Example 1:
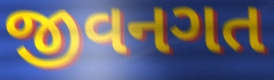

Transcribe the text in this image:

જીવનગત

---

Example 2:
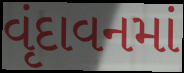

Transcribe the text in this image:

વૃંદાવનમાં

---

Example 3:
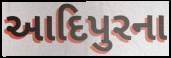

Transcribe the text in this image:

આદિપુરના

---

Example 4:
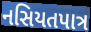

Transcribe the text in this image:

નસિયતપાત્ર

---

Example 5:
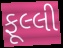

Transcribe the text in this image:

ફૂલ્લી